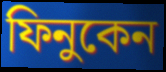
ফিনুকেন